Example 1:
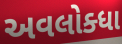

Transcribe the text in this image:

અવલોક્ધા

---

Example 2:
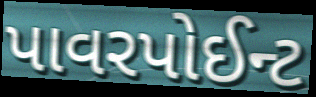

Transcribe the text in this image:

પાવરપોઈન્ટ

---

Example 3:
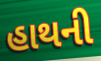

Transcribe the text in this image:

હાથની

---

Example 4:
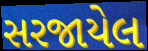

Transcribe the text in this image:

સરજાયેલ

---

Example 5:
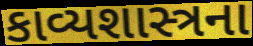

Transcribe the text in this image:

કાવ્યશાસ્ત્રના